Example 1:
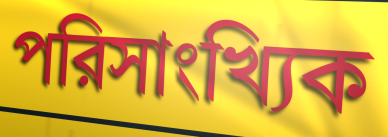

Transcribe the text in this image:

পরিসাংখ্যিক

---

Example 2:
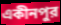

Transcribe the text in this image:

একীনপুর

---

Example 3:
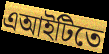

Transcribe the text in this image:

এআইটিতে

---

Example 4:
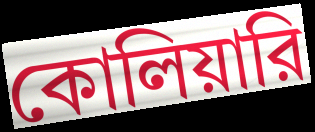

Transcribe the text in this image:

কোলিয়ারি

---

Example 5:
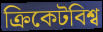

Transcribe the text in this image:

ক্রিকেটবিশ্ব